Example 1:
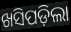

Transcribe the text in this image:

ଖସିପଡ଼ିଲା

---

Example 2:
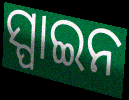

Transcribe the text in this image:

ସ୍ପାଇନ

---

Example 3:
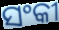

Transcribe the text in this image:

ସଂକୀ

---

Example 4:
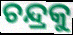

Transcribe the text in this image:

ଚନ୍ଦ୍ରକୁ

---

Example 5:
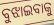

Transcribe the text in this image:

ବୁଝାଇବାକୁ